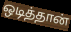
ஒடித்தான்